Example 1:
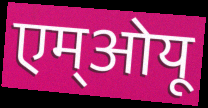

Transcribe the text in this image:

एम्ओयू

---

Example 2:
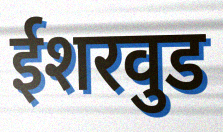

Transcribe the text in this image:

ईशरवुड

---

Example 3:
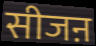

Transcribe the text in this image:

सीजऩ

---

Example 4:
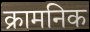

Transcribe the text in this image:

क्रामनिक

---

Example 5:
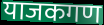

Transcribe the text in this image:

याजकगण